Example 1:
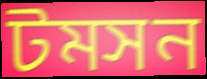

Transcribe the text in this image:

টমসন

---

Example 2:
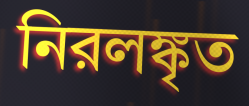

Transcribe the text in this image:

নিরলঙ্কৃত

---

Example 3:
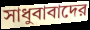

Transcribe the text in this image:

সাধুবাবাদের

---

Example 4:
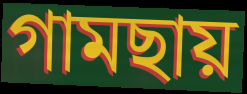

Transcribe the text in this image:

গামছায়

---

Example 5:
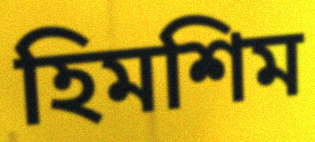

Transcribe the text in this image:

হিমশিম